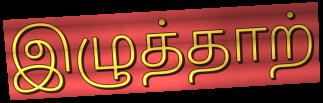
இழுத்தாற்